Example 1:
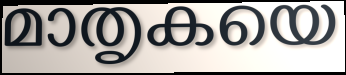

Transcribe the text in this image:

മാതൃകയെ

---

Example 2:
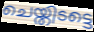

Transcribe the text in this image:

ചെയ്തിടട്ടെ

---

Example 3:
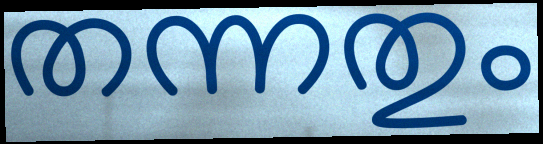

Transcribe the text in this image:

തന്നതും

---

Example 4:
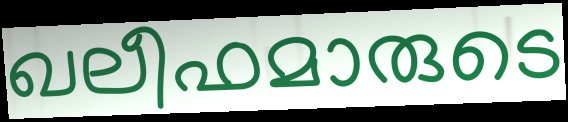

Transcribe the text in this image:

ഖലീഫമാരുടെ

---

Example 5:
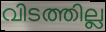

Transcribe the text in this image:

വിടത്തില്ല